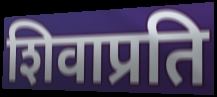
शिवाप्रति